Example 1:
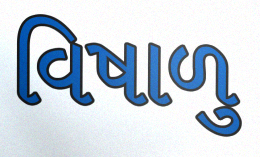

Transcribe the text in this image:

વિષાળુ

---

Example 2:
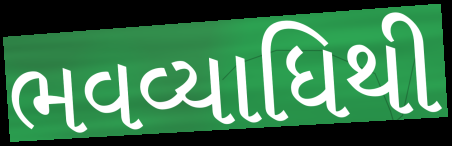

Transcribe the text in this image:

ભવવ્યાધિથી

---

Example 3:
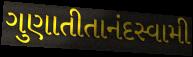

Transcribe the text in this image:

ગુણાતીતાનંદસ્વામી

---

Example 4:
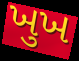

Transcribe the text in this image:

ખુખ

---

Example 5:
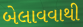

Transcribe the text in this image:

બેલાવવાથી